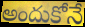
అందుకోనే